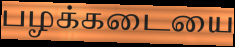
பழக்கடையை